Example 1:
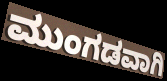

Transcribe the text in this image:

ಮುಂಗಡವಾಗಿ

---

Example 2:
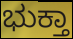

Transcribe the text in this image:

ಭುಕ್ತಾ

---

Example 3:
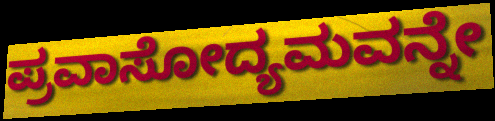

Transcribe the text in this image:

ಪ್ರವಾಸೋದ್ಯಮವನ್ನೇ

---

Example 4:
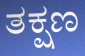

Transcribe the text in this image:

ತಕ್ಷಣ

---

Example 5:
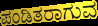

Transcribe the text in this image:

ಪಂಡಿತರಾಗುವ